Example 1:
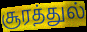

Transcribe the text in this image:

சூரத்துல்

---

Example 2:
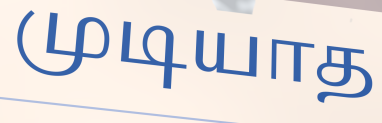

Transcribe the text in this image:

முடியாத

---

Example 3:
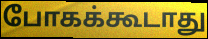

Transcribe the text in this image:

போகக்கூடாது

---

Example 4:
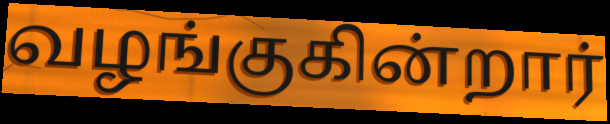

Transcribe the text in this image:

வழங்குகின்றார்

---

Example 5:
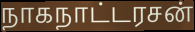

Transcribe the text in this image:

நாகநாட்டரசன்